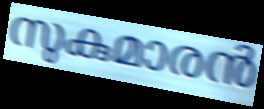
സുകുമാരൻ